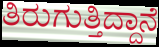
ತಿರುಗುತ್ತಿದ್ದಾನೆ